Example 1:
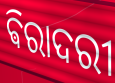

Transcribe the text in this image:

ଵିରାଦରୀ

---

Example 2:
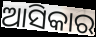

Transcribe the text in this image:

ଆସିକାର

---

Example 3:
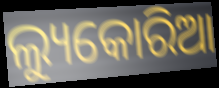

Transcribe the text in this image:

ଲ୍ୟୁକୋରିଆ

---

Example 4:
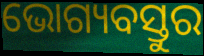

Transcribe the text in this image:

ଭୋଗ୍ୟବସ୍ତୁର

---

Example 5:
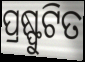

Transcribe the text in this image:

ପ୍ରଷ୍ଫୁଟିତ